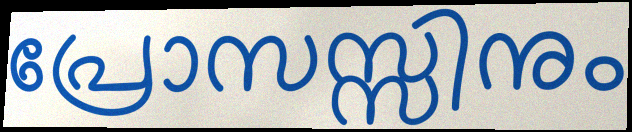
പ്രോസസ്സിനും